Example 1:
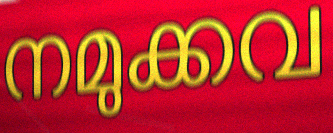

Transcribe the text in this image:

നമുക്കവ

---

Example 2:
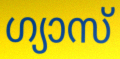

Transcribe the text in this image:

ഗ്യാസ്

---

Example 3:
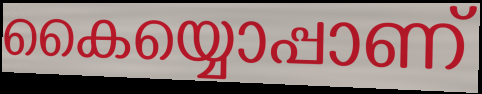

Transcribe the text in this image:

കൈയ്യൊപ്പാണ്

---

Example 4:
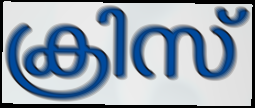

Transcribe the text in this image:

ക്രിസ്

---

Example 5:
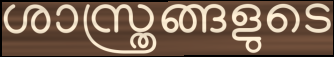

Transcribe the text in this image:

ശാസ്ത്രങ്ങളുടെ